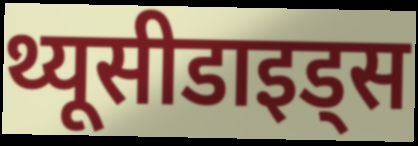
थ्यूसीडाइड्स